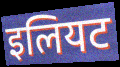
इलियट